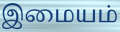
இமையம்